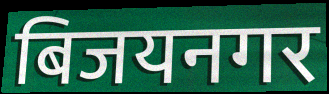
बिजयनगर